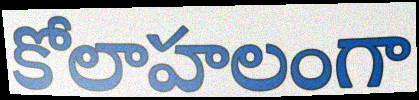
కోలాహలంగా